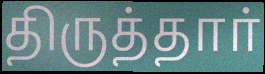
திருத்தார்